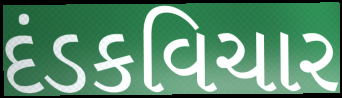
દંડકવિચાર